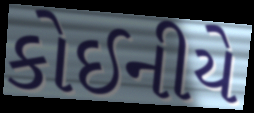
કોઈનીયે